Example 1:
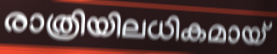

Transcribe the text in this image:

രാത്രിയിലധികമായ്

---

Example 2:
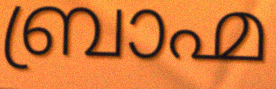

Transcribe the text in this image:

ബ്രാഹ്മ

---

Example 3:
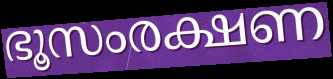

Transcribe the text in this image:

ഭൂസംരക്ഷണ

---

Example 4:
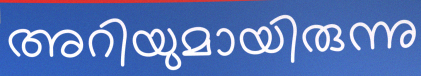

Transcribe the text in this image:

അറിയുമായിരുന്നു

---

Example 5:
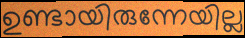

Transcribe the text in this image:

ഉണ്ടായിരുന്നേയില്ല